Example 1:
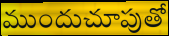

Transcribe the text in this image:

ముందుచూపుతో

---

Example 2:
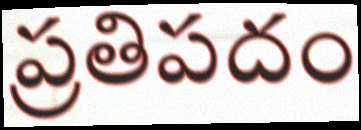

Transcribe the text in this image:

ప్రతిపదం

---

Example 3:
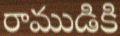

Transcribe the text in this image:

రాముడికి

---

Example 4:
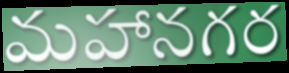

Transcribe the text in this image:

మహానగర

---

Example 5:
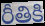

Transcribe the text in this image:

రీతికి